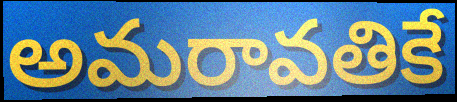
అమరావతికే